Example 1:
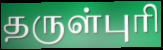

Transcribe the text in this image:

தருள்புரி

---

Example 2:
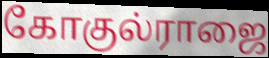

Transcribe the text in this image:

கோகுல்ராஜை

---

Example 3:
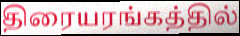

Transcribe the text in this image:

திரையரங்கத்தில்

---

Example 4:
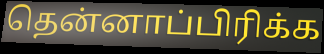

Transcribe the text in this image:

தென்னாப்பிரிக்க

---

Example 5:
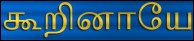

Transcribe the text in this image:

கூறினாயே